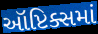
ઑપ્ટિક્સમાં